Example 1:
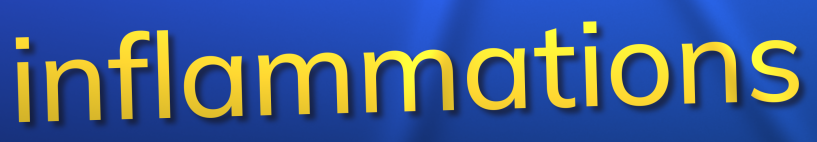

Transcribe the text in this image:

inflammations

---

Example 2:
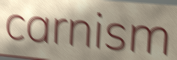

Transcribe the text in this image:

carnism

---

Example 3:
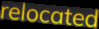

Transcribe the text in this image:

relocated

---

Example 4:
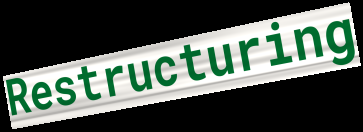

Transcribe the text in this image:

Restructuring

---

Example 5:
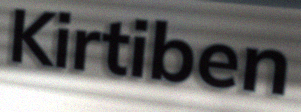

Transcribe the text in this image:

Kirtiben